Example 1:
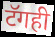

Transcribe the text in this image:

टॅगही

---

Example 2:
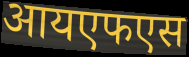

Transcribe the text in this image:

आयएफएस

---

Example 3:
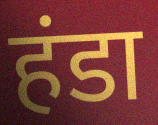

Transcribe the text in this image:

हंडा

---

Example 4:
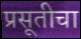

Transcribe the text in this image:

प्रसूतीचा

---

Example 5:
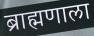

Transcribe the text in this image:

ब्राह्मणाला